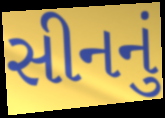
સીનનું